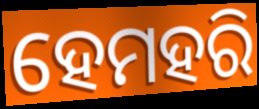
ହେମହରି